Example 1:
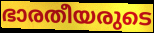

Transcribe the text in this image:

ഭാരതീയരുടെ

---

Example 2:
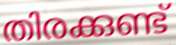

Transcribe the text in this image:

തിരക്കുണ്ട്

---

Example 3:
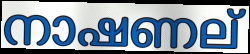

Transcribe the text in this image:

നാഷണല്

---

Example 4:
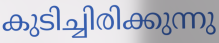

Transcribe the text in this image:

കുടിച്ചിരിക്കുന്നു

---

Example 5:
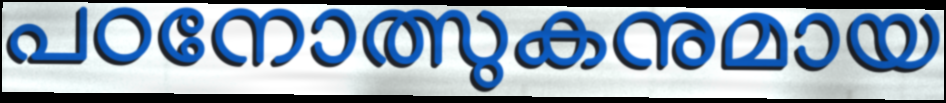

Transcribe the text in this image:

പഠനോത്സുകനുമായ